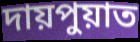
দায়পুয়াত